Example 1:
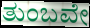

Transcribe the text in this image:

ತುಂಬವೇ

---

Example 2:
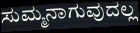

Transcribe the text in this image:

ಸುಮ್ಮನಾಗುವುದಲ್ಲ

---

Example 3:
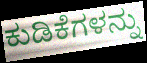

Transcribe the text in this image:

ಕುಡಿಕೆಗಳನ್ನು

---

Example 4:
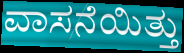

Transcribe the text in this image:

ವಾಸನೆಯಿತ್ತು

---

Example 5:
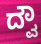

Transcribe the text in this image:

ದ್ವೌ